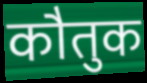
कौतुक